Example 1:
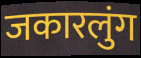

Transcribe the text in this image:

जकारलुंग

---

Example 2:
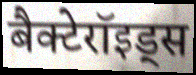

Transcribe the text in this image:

बैक्टेरॉइड्स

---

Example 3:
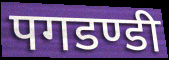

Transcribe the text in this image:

पगडण्डी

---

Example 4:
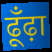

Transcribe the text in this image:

ढूँढ़ा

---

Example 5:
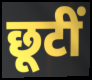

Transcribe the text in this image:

छूटीं